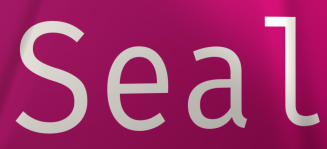
Seal